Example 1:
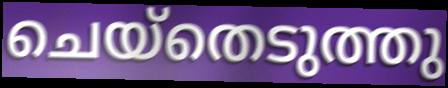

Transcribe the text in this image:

ചെയ്തെടുത്തു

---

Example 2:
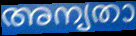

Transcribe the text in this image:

അന്യതാ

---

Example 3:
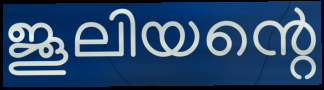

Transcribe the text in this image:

ജൂലിയന്റെ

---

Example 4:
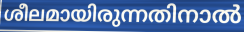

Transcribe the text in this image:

ശീലമായിരുന്നതിനാൽ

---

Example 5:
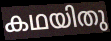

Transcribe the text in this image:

കഥയിതു